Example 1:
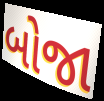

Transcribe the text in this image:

બોજા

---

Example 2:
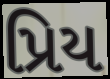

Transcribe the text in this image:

પ્રિય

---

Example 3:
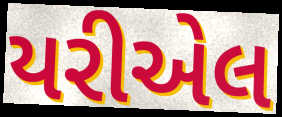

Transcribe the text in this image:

યરીએલ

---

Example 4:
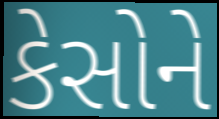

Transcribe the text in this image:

કેસોને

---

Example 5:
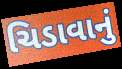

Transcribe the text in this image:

ચિડાવાનું